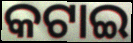
କଟାଇ